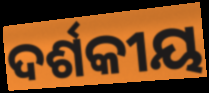
ଦର୍ଶକୀୟ